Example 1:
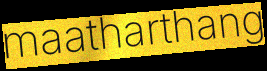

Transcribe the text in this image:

maatharthang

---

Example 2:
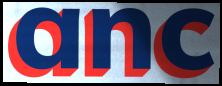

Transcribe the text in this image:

anc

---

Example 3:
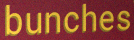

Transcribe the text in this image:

bunches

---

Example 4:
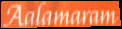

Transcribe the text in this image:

Aalamaram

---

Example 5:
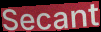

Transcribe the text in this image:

Secant